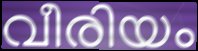
വീരിയം